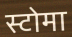
स्टोमा